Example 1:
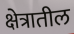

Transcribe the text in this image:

क्षेत्रातील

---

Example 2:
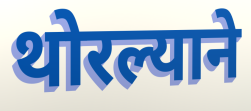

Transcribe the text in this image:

थोरल्याने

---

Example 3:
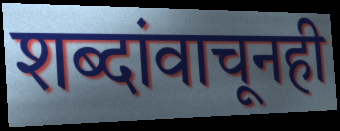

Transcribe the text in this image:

शब्दांवाचूनही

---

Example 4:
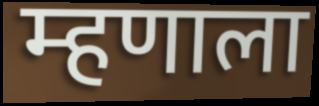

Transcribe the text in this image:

म्हणाला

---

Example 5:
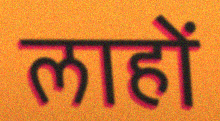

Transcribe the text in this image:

लाहों